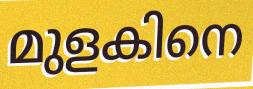
മുളകിനെ